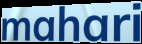
mahari